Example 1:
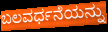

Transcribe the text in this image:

ಬಲವರ್ಧನೆಯನ್ನು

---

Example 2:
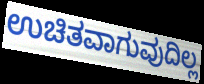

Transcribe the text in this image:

ಉಚಿತವಾಗುವುದಿಲ್ಲ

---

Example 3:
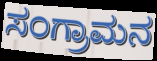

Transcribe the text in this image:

ಸಂಗ್ರಾಮನ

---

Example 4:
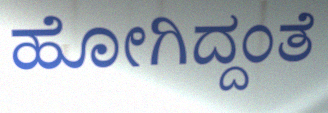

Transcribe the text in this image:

ಹೋಗಿದ್ದಂತೆ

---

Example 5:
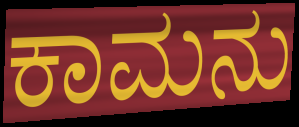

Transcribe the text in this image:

ಕಾಮನು